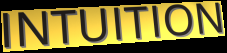
INTUITION